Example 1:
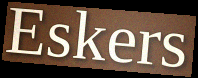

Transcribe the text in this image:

Eskers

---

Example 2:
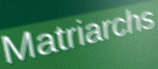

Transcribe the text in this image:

Matriarchs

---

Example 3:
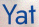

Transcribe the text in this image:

Yat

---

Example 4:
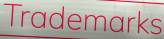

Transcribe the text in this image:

Trademarks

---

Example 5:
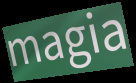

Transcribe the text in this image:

magia